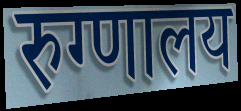
रुग्णालय